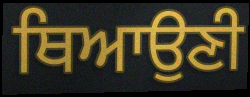
ਥਿਆਉਣੀ